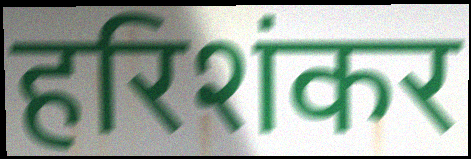
हरिशंकर